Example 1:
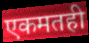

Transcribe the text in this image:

एकमतही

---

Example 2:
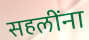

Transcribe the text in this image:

सहलींना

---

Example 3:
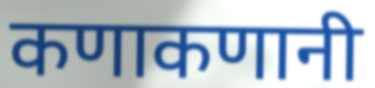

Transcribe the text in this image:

कणाकणानी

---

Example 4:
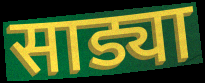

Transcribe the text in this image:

साड्या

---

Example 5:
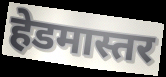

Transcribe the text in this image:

हेडमास्तर